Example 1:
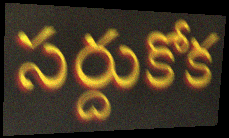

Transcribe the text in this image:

సర్దుకోక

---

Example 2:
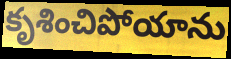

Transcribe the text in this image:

కృశించిపోయాను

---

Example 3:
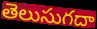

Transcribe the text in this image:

తెలుసుగదా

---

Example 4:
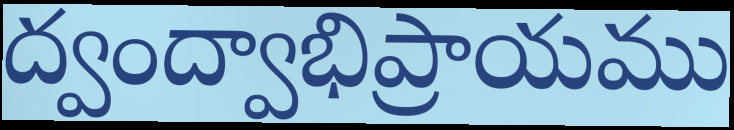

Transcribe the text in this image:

ద్వంద్వాభిప్రాయము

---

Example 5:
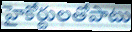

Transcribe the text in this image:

హైకోర్టులతోపాటు